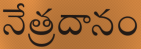
నేత్రదానం